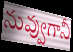
నువ్వుగానీ